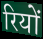
रियों